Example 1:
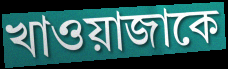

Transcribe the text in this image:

খাওয়াজাকে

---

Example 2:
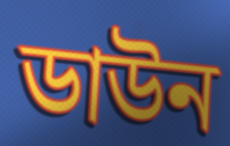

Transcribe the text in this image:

ডাউন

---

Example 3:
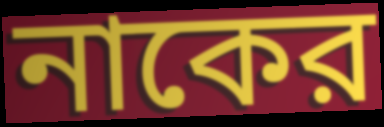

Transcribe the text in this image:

নাকের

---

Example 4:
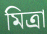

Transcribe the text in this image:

মিত্রা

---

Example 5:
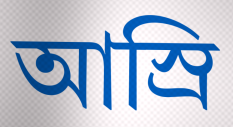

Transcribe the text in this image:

আস্রি